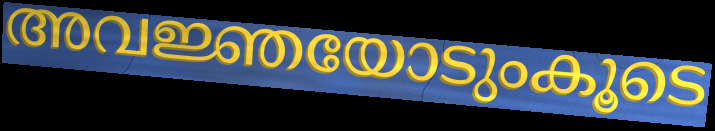
അവജ്ഞയോടുംകൂടെ